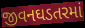
જીવનઘડતરમાં